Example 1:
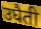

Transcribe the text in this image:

उघैती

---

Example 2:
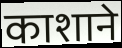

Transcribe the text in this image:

काशाने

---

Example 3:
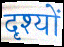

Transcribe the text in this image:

दृश्यों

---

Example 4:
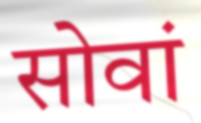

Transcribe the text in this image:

सोवां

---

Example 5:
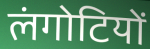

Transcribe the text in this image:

लंगोटियों